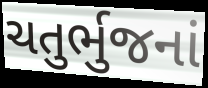
ચતુર્ભુજનાં